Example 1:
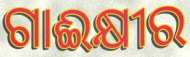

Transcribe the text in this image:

ଗାଈକ୍ଷୀର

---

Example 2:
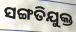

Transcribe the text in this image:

ସଙ୍ଗତିଯୁକ୍ତ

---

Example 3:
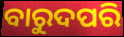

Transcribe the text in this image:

ବାରୁଦପରି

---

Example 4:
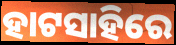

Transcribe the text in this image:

ହାଟସାହିରେ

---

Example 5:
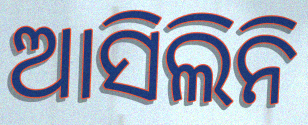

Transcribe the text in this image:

ଆସିଲିନି